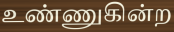
உண்ணுகின்ற